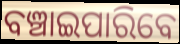
ବଞ୍ଚାଇପାରିବେ